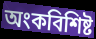
অংকবিশিষ্ট